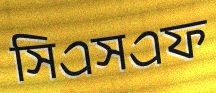
সিএসএফ